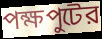
পক্ষপুটের